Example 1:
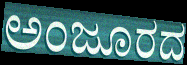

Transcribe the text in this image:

ಅಂಜೂರದ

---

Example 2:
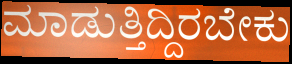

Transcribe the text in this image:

ಮಾಡುತ್ತಿದ್ದಿರಬೇಕು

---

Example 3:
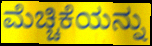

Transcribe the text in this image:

ಮೆಚ್ಚಿಕೆಯನ್ನು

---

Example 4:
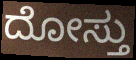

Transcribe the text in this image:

ದೋಸ್ತು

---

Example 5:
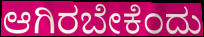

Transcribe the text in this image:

ಆಗಿರಬೇಕೆಂದು